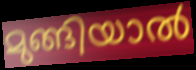
മുങ്ങിയാൽ